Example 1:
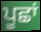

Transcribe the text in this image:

ਪੂਛਾਂ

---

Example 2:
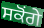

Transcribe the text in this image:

ਸਕੋਂਗੇ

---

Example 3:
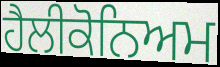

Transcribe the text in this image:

ਹੈਲੀਕੋਨਿਅਮ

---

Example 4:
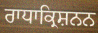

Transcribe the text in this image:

ਰਾਧਾਕ੍ਰਿਸ਼ਨਨ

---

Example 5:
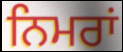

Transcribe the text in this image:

ਨਿਮਰਾਂ